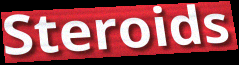
Steroids